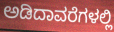
ಅಡಿದಾವರೆಗಳಲ್ಲಿ